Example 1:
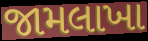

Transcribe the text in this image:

જામલાખા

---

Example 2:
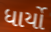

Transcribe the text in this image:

ધાર્યો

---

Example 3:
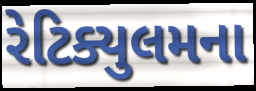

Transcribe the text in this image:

રેટિક્યુલમના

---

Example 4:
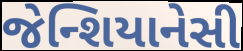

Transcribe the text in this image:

જેન્શિયાનેસી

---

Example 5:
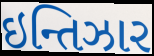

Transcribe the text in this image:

ઇન્તિઝાર